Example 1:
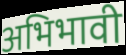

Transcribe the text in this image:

अभिभावी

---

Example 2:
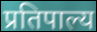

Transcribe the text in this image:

प्रतिपाल्य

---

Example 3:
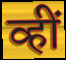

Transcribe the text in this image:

व्हीं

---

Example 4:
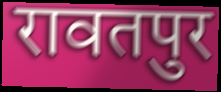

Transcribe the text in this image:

रावतपुर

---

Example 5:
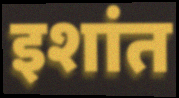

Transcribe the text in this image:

इशांत